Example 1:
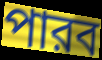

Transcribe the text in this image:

পারব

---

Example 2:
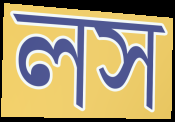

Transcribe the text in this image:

লস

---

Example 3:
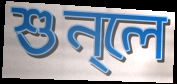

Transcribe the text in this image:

শুন্‌লে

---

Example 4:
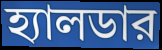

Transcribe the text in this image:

হ্যালডার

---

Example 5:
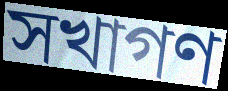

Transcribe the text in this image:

সখাগণ